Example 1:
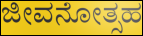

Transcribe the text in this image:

ಜೀವನೋತ್ಸಹ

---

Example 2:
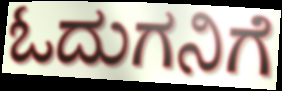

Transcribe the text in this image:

ಓದುಗನಿಗೆ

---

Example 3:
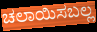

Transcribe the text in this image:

ಚಲಾಯಿಸಬಲ್ಲ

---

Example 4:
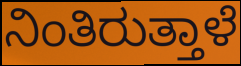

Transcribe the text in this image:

ನಿಂತಿರುತ್ತಾಳೆ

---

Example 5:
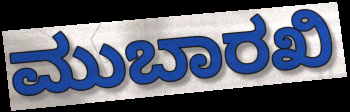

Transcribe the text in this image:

ಮುಬಾರಖಿ